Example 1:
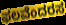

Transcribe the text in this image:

ಫಲವೆಂದರಸ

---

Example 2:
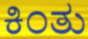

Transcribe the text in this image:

ಕಿಂತು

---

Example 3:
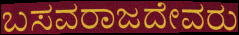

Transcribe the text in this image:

ಬಸವರಾಜದೇವರು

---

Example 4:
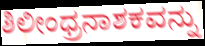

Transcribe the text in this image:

ಶಿಲೀಂಧ್ರನಾಶಕವನ್ನು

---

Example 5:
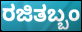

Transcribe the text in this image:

ರಜಿತಬ್ಬಂ